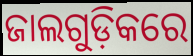
ଜାଲଗୁଡ଼ିକରେ